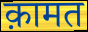
क़ामत